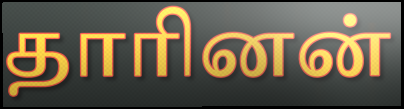
தாரினன்